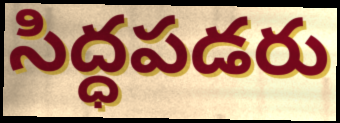
సిద్ధపడరు